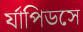
র্যাপিডসে